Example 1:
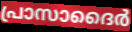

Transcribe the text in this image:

പ്രാസാദൈർ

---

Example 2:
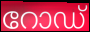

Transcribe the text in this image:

റോഡ്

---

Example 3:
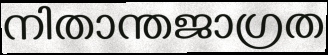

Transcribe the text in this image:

നിതാന്തജാഗ്രത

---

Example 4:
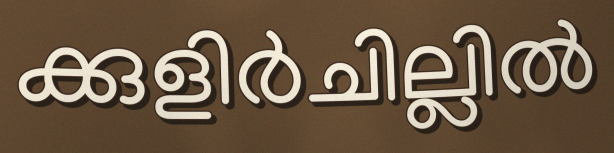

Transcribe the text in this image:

ക്കുളിർചില്ലിൽ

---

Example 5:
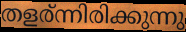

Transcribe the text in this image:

തളര്ന്നിരിക്കുന്നു